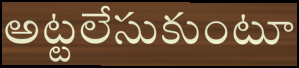
అట్టలేసుకుంటూ